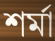
শর্মা